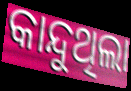
କାନ୍ଦୁଥିଲା